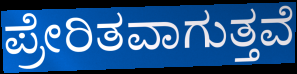
ಪ್ರೇರಿತವಾಗುತ್ತವೆ